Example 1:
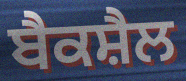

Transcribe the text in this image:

ਬੈਕਸ਼ੈਲ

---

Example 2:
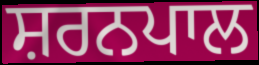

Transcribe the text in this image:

ਸ਼ਰਨਪਾਲ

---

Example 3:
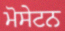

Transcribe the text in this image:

ਮੋਸੇਟਨ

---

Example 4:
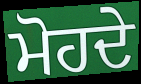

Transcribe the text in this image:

ਮੋਹਦੇ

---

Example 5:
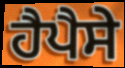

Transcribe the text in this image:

ਹੈਪੈਸੇ